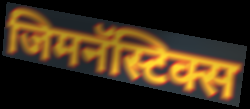
जिमनॅस्टिक्स